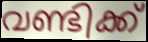
വണ്ടിക്ക്